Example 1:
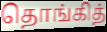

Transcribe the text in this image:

தொங்கித்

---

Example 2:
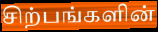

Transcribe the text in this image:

சிற்பங்களின்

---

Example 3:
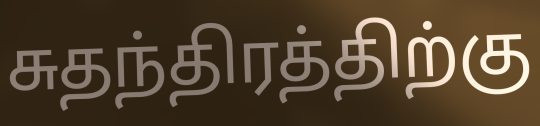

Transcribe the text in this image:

சுதந்திரத்திற்கு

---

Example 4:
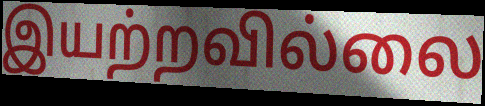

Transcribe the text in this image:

இயற்றவில்லை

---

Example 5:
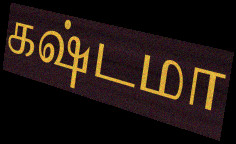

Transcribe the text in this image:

கஷ்டமா